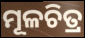
ମୂଳଚିତ୍ର